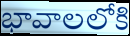
భావాలలోకి